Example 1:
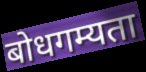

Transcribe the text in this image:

बोधगम्यता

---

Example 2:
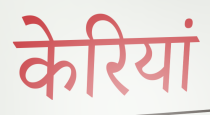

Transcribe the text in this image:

केरियां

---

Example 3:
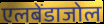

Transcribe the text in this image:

एलबेंडाजोल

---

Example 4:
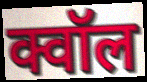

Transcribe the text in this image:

क्वॉल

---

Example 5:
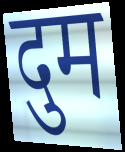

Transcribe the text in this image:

दुम